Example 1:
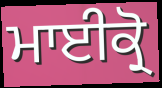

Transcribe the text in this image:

ਮਾਈਕ੍ਰੋ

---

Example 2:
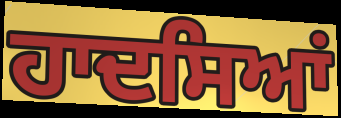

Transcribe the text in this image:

ਹਾਦਸਿਆਂ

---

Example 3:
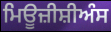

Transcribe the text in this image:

ਮਿਊਜ਼ੀਸ਼ੀਅੰਸ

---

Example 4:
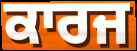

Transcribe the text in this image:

ਕਾਰਜ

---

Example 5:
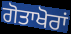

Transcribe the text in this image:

ਗੋਤਾਖੋਰਾਂ